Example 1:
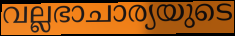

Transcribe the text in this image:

വല്ലഭാചാര്യയുടെ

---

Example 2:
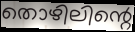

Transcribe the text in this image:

തൊഴിലിന്റെ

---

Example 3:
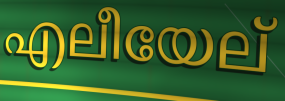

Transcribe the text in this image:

എലീയേല്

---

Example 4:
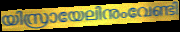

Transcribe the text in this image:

യിസ്രായേലിനുംവേണ്ടി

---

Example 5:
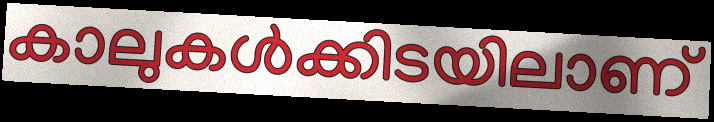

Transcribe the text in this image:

കാലുകൾക്കിടയിലാണ്